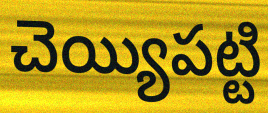
చెయ్యిపట్టి